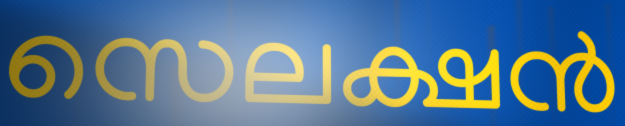
സെലക്ഷൻ